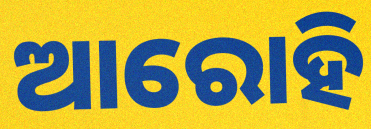
ଆରୋହି